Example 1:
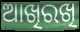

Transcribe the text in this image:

ଆଖିରଖି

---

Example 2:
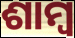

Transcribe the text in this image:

ଶାମ୍ୱ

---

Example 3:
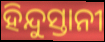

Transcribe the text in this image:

ହିନ୍ଦୁସ୍ତାନୀ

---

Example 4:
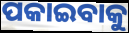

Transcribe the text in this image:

ପକାଇବାକୁ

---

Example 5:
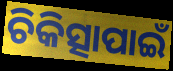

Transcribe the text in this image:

ଚିକିତ୍ସାପାଇଁ